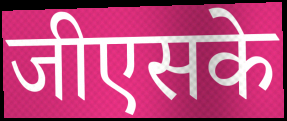
जीएसके